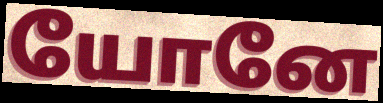
யோனே